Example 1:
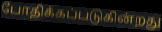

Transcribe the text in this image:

போதிக்கப்படுகின்றது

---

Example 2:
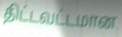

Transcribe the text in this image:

திட்டவட்டமான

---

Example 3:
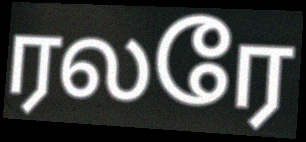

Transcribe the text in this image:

ரலரே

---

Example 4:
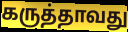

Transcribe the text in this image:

கருத்தாவது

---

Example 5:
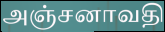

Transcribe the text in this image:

அஞ்சனாவதி